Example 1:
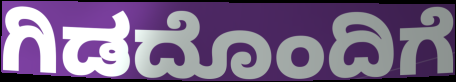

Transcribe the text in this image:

ಗಿಡದೊಂದಿಗೆ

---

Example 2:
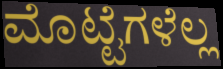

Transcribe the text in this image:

ಮೊಟ್ಟೆಗಳೆಲ್ಲ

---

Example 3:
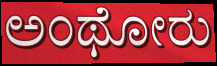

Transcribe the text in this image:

ಅಂಥೋರು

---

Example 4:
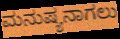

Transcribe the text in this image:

ಮನುಷ್ಯನಾಗಲು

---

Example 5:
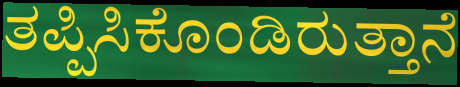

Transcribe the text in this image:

ತಪ್ಪಿಸಿಕೊಂಡಿರುತ್ತಾನೆ